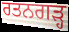
ਰਤਨਗੜ੍ਹ